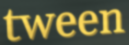
tween